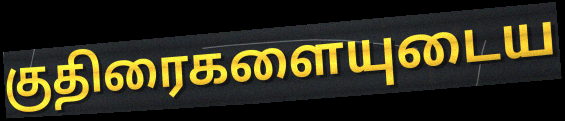
குதிரைகளையுடைய